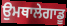
ਉਮਥਾਲੇਗਾਡੂ